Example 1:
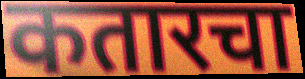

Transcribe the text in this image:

कतारचा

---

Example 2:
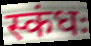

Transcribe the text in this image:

स्कंधः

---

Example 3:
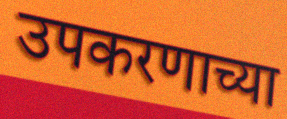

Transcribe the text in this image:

उपकरणाच्या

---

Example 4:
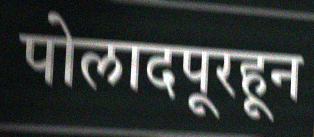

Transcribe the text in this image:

पोलादपूरहून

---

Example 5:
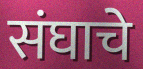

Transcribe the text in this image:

संघाचे